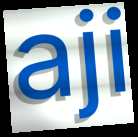
aji